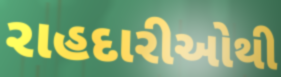
રાહદારીઓથી